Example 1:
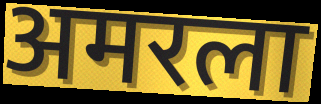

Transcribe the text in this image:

अमरला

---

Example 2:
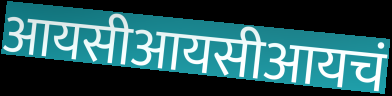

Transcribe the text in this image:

आयसीआयसीआयचं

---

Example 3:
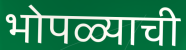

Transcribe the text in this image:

भोपळ्याची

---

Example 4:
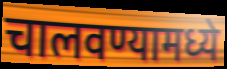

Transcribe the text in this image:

चालवण्यामध्ये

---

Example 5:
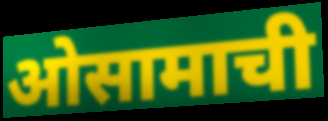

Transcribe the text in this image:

ओसामाची